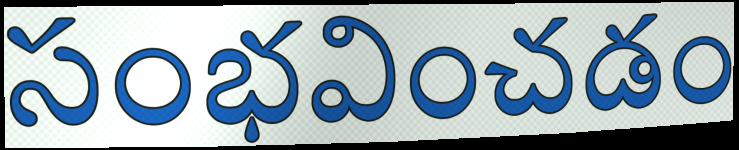
సంభవించడం